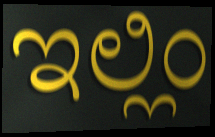
ಇಲ್ಲಿಂ